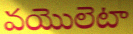
వయొలెటా